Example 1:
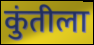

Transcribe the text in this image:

कुंतीला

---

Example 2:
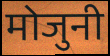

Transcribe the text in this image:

मोजुनी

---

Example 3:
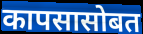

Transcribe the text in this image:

कापसासोबत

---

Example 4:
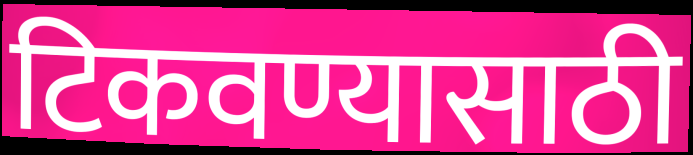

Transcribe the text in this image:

टिकवण्यासाठी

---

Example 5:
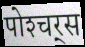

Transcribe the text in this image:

पोश्चर्स